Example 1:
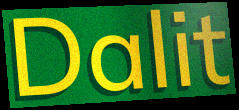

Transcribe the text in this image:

Dalit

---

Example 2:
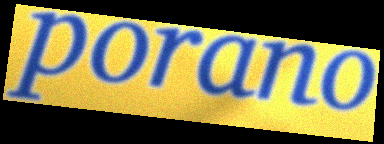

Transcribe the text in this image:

porano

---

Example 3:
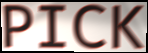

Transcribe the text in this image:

PICK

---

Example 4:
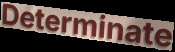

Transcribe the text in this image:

Determinate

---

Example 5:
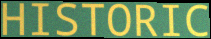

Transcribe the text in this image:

HISTORIC